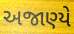
અજાણ્યે